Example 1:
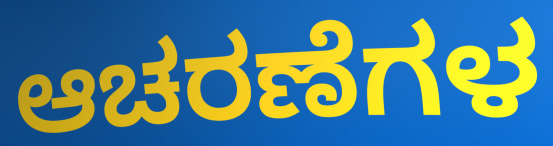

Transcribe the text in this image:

ಆಚರಣೆಗಳ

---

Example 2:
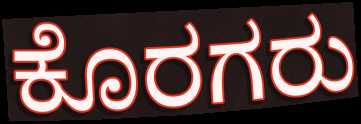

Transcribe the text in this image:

ಕೊರಗರು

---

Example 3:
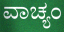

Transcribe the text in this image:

ವಾಚ್ಯಂ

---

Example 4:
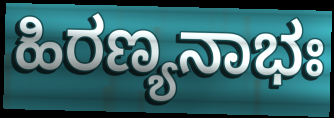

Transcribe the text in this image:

ಹಿರಣ್ಯನಾಭಃ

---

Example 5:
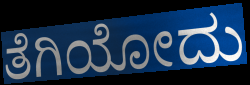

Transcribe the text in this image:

ತೆಗಿಯೋದು